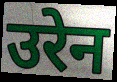
उरेन